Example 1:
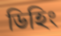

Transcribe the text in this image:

ডিহিং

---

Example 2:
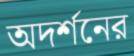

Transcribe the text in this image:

অদর্শনের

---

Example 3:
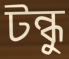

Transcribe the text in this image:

টন্ধু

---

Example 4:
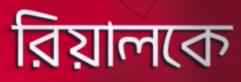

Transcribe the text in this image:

রিয়ালকে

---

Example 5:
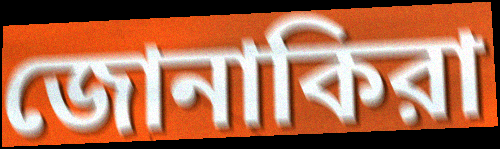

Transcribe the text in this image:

জোনাকিরা